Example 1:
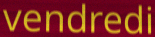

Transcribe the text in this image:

vendredi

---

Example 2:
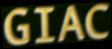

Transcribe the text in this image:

GIAC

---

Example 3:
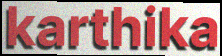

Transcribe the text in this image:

karthika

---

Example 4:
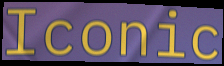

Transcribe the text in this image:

Iconic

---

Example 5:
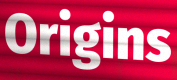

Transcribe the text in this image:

Origins